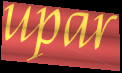
upar